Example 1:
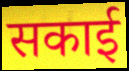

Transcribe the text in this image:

सकाई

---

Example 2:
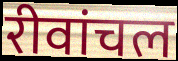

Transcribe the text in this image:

रीवांचल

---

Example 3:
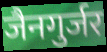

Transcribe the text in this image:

जैनगुर्जर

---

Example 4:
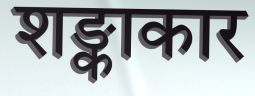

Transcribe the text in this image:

शङ्काकार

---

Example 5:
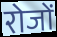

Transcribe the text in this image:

रोजों